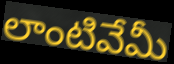
లాంటివేమీ